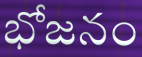
భోజనం